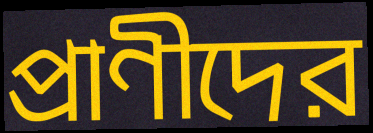
প্রাণীদের